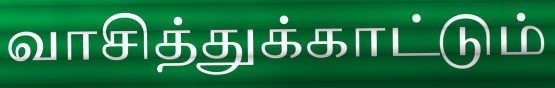
வாசித்துக்காட்டும்